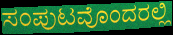
ಸಂಪುಟವೊಂದರಲ್ಲಿ